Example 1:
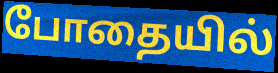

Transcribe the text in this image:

போதையில்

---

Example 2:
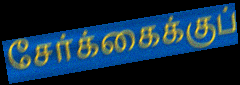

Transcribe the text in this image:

சேர்க்கைக்குப்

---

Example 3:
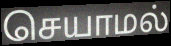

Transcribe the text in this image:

செயாமல்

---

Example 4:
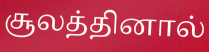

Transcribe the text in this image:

சூலத்தினால்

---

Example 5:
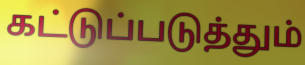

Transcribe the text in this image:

கட்டுப்படுத்தும்